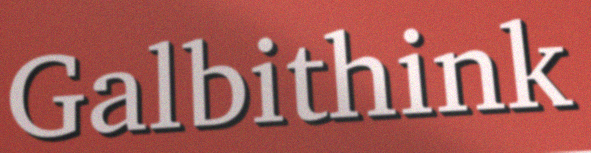
Galbithink